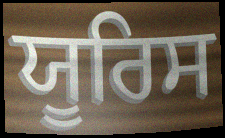
ਯੂਰਿਸ